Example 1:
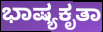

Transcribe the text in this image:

ಭಾಷ್ಯಕೃತಾ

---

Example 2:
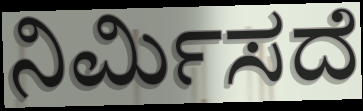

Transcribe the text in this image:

ನಿರ್ಮಿಸದೆ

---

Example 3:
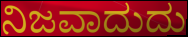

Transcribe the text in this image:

ನಿಜವಾದುದು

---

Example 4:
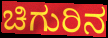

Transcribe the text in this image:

ಚಿಗುರಿನ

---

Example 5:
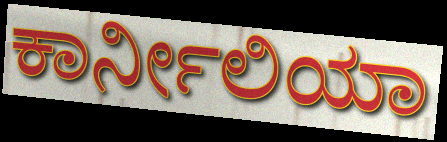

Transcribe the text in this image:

ಕಾರ್ನೀಲಿಯಾ